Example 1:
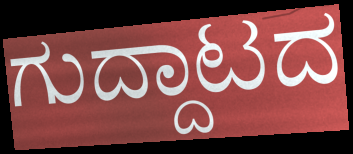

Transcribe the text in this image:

ಗುದ್ದಾಟದ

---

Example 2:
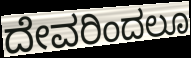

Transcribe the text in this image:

ದೇವರಿಂದಲೂ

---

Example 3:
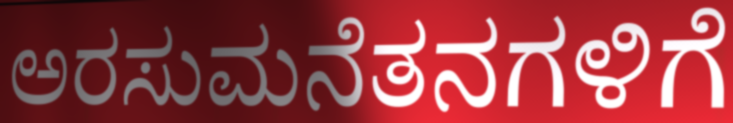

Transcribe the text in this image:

ಅರಸುಮನೆತನಗಳಿಗೆ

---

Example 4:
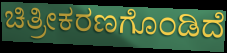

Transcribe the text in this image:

ಚಿತ್ರೀಕರಣಗೊಂಡಿದೆ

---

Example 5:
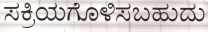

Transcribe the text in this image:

ಸಕ್ರಿಯಗೊಳಿಸಬಹುದು